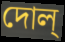
দোল্